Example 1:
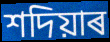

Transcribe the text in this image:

শদিয়াৰ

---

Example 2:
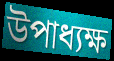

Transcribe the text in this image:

উপাধ্যক্ষ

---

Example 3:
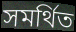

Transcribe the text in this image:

সমৰ্থিত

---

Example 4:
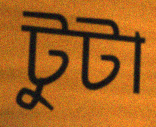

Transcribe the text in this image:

টুটা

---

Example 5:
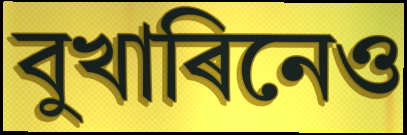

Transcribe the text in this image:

বুখাৰিনেও